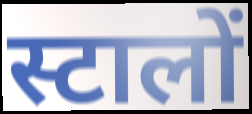
स्टालों